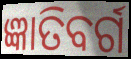
ଜ୍ଞାତିବର୍ଗ